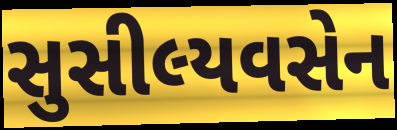
સુસીલ્યવસેન